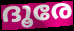
ദൂരേ